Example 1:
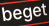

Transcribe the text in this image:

beget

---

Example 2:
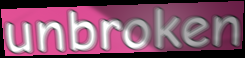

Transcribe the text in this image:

unbroken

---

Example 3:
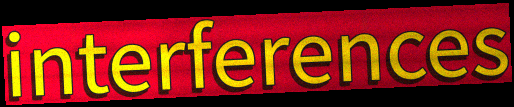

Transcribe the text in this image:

interferences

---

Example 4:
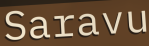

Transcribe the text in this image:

Saravu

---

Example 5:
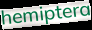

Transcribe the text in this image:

hemiptera